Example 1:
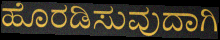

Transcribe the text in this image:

ಹೊರಡಿಸುವುದಾಗಿ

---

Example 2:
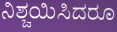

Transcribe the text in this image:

ನಿಶ್ಚಯಿಸಿದರೂ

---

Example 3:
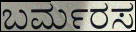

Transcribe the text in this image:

ಬರ್ಮರಸ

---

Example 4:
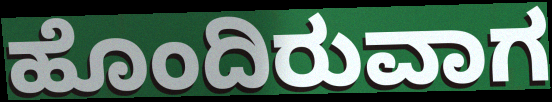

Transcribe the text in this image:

ಹೊಂದಿರುವಾಗ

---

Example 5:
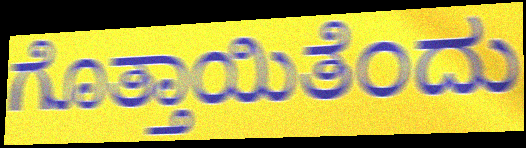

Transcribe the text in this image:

ಗೊತ್ತಾಯಿತೆಂದು